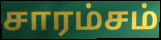
சாரம்சம்